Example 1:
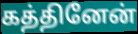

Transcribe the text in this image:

கத்தினேன்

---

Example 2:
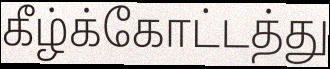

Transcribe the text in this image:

கீழ்க்கோட்டத்து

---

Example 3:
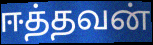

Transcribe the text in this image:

ஈத்தவன்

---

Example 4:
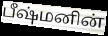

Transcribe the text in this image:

பீஷ்மனின்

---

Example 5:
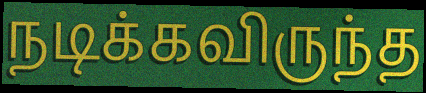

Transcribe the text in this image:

நடிக்கவிருந்த